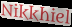
Nikkhiel